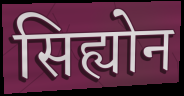
सिह्योन